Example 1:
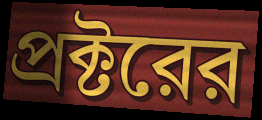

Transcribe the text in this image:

প্রক্টরের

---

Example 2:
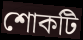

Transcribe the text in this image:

শোকটি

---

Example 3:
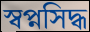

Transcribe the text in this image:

স্বপ্নসিদ্ধ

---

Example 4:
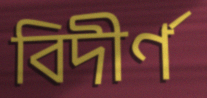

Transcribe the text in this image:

বিদীর্ণ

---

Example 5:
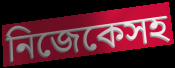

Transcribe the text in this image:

নিজেকেসহ